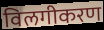
विलगीकरण